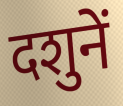
दशुनें